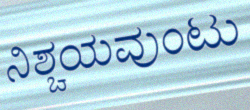
ನಿಶ್ಚಯವುಂಟು